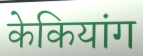
केकियांग